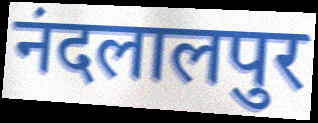
नंदलालपुर